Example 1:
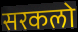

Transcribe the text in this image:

सरकलो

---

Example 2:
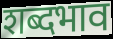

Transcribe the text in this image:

शब्दभाव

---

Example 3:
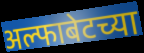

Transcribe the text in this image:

अल्फाबेटच्या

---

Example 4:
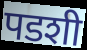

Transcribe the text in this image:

पडशी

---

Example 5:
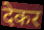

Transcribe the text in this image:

देकर